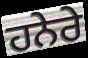
ਹਨੇਰੇ